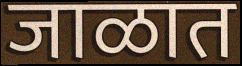
जाळात